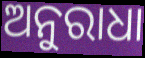
ଅନୁରାଧା